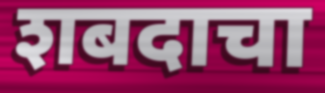
शबदाचा